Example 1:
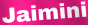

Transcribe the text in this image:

Jaimini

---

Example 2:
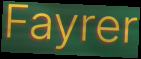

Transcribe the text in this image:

Fayrer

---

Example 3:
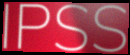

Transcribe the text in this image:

IPSS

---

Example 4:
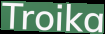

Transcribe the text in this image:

Troika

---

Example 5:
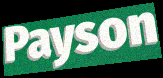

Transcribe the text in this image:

Payson